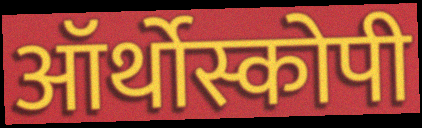
ऑर्थोस्कोपी